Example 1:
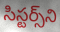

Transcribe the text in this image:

సిస్టర్స్‌ని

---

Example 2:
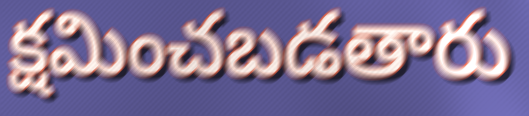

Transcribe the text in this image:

క్షమించబడతారు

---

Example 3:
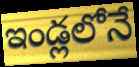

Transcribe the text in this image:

ఇండ్లలోనే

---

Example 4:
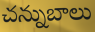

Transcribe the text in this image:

చన్నుబాలు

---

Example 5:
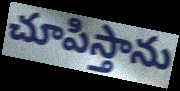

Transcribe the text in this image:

చూపిస్తాను